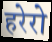
हरेरो